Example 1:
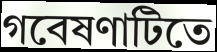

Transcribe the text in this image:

গবেষণাটিতে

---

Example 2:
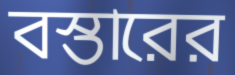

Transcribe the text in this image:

বস্তারের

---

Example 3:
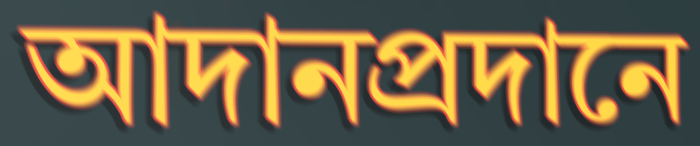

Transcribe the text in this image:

আদানপ্রদানে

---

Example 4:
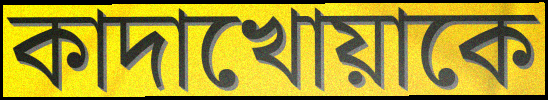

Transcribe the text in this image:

কাদাখোয়াকে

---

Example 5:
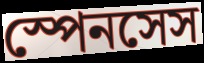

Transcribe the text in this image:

স্পেনসেস